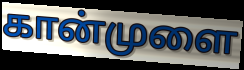
கான்முளை